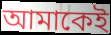
আমাকেই